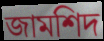
জামশিদ